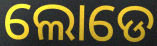
ଲୋଡେ